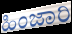
ಹಿಂಜಾರಿ